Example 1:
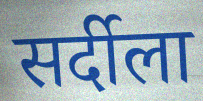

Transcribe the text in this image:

सर्दीला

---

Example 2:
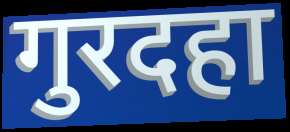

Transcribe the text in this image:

गुरदहा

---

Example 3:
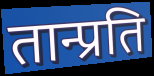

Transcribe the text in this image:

तान्प्रति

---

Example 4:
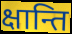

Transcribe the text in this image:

क्षान्ति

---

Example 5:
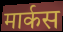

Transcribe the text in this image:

मार्कस